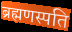
ब्रह्मणस्पति